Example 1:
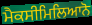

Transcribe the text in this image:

ਮੈਕਸੀਮਿਲਿਆਨੋ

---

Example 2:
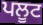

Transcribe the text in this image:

ਪਲੂਟ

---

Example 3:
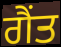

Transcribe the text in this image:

ਗੈਂਤ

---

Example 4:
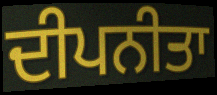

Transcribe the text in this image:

ਦੀਪਨੀਤਾ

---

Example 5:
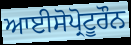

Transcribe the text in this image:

ਆਈਸੋਪ੍ਰੋਟੂਰੌਨ